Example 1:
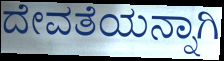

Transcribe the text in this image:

ದೇವತೆಯನ್ನಾಗಿ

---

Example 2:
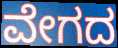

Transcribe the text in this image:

ವೇಗದ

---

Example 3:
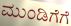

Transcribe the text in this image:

ಮುಂಡಿಗೆಗೆ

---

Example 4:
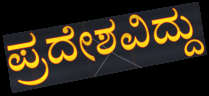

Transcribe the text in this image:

ಪ್ರದೇಶವಿದ್ದು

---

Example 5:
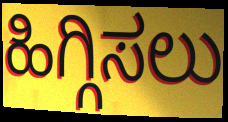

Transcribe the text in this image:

ಹಿಗ್ಗಿಸಲು